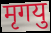
मृगयु